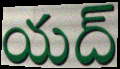
యద్